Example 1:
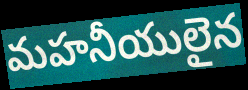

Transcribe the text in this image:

మహనీయులైన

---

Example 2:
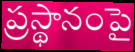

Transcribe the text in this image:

ప్రస్థానంపై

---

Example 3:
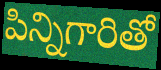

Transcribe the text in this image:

పిన్నిగారితో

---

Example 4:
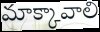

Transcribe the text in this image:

మాక్కావాలి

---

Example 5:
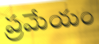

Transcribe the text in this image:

ప్రమేయం